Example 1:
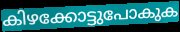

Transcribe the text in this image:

കിഴക്കോട്ടുപോകുക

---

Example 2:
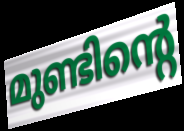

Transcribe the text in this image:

മുണ്ടിന്റെ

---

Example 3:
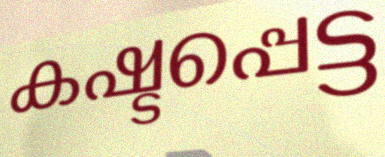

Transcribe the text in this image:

കഷ്ടപ്പെട്ട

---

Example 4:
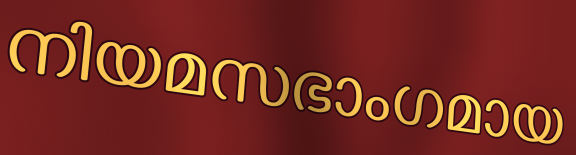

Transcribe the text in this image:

നിയമസഭാംഗമായ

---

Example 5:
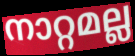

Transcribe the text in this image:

നാറ്റമല്ല